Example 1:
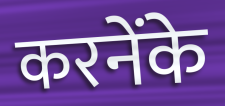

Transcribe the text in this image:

करनेंके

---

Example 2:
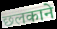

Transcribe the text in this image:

छलकाने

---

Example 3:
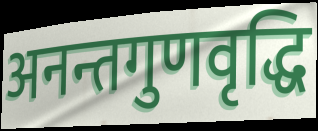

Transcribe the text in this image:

अनन्तगुणवृद्धि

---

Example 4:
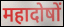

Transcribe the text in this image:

महादोषों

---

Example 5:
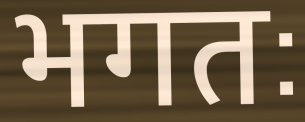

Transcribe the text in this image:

भगतः